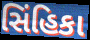
સિંહિકા